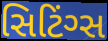
સિટિંગ્સ